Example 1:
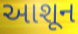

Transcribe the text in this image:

આશૂન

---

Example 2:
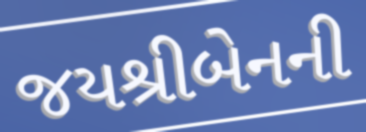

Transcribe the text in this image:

જયશ્રીબેનની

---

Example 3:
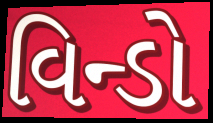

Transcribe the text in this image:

વિન્ડો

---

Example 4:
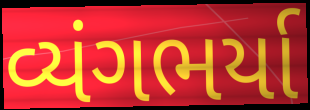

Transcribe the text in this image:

વ્યંગભર્યા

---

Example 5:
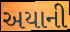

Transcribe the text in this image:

અયાની